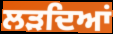
ਲੜਦਿਆਂ